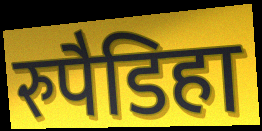
रुपैडिहा